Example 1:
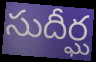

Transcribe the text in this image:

సుదీర్ఘ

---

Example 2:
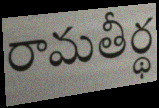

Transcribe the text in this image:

రామతీర్థ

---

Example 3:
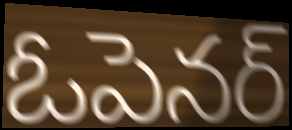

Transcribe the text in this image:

ఓపెనర్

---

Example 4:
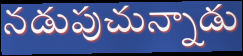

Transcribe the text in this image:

నడుపుచున్నాడు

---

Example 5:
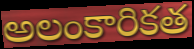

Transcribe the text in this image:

అలంకారికత